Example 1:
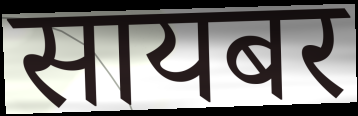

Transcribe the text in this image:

सायबर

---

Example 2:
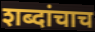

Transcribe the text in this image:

शब्दांचाच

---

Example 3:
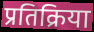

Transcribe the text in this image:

प्रतिक्रिया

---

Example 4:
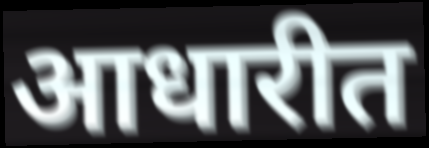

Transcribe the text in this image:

आधारीत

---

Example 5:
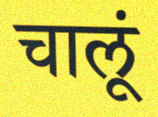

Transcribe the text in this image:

चालूं